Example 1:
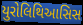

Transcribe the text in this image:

યુરોલિથિઆસિસ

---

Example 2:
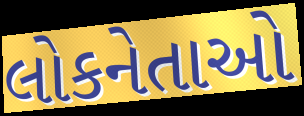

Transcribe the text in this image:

લોકનેતાઓ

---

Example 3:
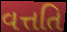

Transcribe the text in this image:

વત્તતિ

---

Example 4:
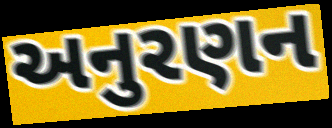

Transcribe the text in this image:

અનુરણન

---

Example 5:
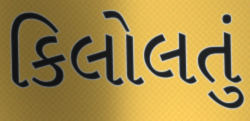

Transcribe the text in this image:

કિલોલતું